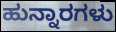
ಹುನ್ನಾರಗಳು